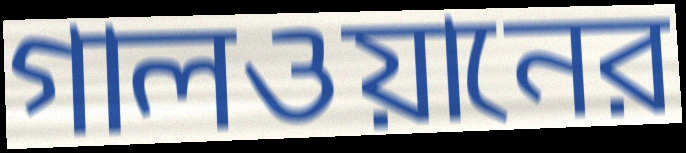
গালওয়ানের